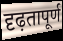
दृढ़तापूर्ण